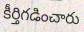
కీర్తిగడించారు